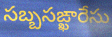
సబ్బసఙ్ఖారేసు